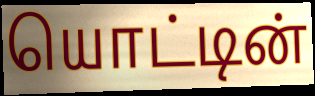
யொட்டின்